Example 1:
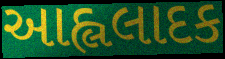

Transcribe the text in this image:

આહ્લલાદક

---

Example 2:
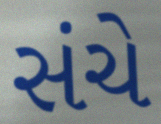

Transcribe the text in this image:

સંચે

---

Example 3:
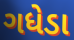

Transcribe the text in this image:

ગધેડા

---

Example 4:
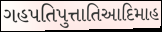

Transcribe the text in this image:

ગહપતિપુત્તાતિઆદિમાહ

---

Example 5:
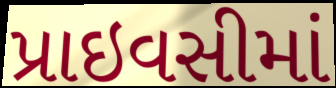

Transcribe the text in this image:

પ્રાઇવસીમાં